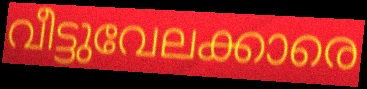
വീട്ടുവേലക്കാരെ